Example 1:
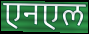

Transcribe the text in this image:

एनएल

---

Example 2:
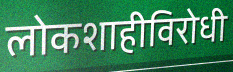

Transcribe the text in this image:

लोकशाहीविरोधी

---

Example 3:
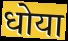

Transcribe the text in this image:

धोया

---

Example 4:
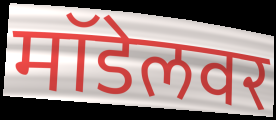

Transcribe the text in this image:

मॉडेलवर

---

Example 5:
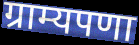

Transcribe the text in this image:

ग्राम्यपणा